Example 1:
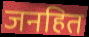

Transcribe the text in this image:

जनहित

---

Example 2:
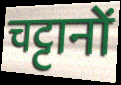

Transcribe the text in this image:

चट्टानों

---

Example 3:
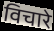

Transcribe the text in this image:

विचारे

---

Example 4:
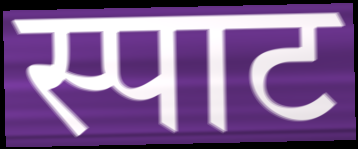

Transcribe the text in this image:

स्पाट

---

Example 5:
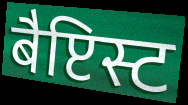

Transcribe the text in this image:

बैप्टिस्ट